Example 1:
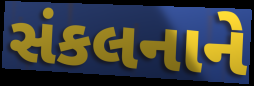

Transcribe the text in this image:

સંકલનાને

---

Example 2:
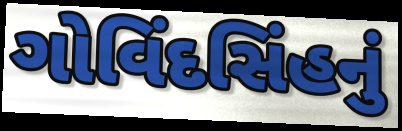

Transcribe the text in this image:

ગોવિંદસિંહનું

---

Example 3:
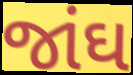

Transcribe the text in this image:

જાંઘ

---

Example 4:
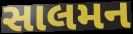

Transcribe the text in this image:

સાલમન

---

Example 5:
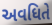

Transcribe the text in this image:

અવધિતે